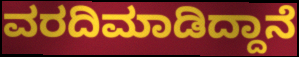
ವರದಿಮಾಡಿದ್ದಾನೆ